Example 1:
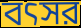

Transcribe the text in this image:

বৎসর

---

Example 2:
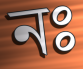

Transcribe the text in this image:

নঃ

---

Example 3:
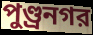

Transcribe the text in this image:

পুণ্ড্রনগর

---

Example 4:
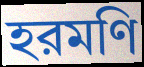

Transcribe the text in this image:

হরমণি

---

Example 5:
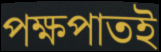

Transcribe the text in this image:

পক্ষপাতই